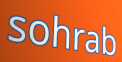
sohrab